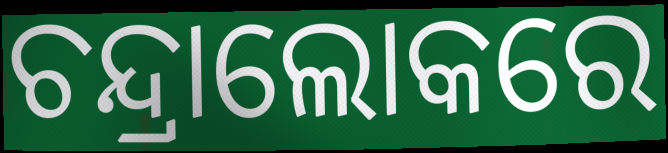
ଚନ୍ଦ୍ରାଲୋକରେ